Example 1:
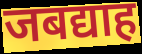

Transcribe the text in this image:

जबद्याह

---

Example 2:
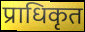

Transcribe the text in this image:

प्राधिकृत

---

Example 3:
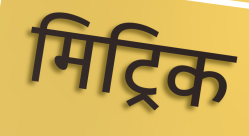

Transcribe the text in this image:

मिट्रिक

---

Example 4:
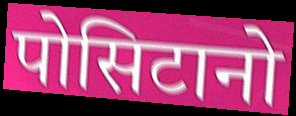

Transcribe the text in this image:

पोसिटानो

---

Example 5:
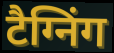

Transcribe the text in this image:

टैग्निंग